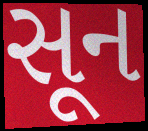
સૂન